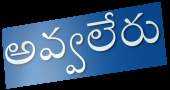
అవ్వలేరు